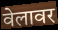
वेलावर